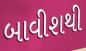
બાવીશથી